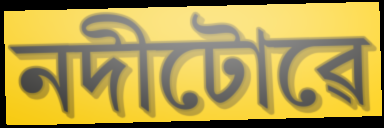
নদীটোৱে